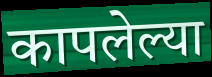
कापलेल्या